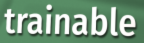
trainable